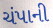
ચંપાની